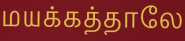
மயக்கத்தாலே